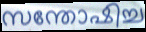
സന്തോഷിച്ച